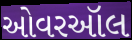
ઓવરઑલ